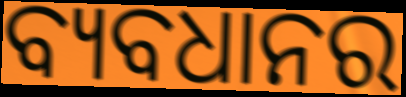
ବ୍ୟବଧାନର